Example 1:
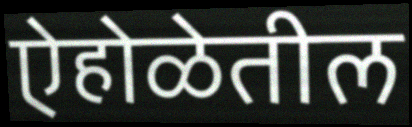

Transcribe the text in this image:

ऐहोळेतील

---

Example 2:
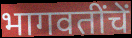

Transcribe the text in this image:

भागवतींचें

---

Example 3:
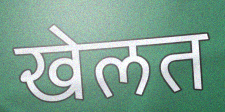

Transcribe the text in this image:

खेलत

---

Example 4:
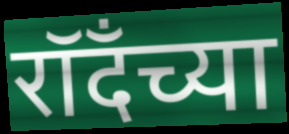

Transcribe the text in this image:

रॉदँच्या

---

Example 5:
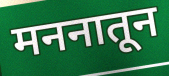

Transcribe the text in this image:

मननातून